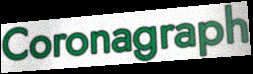
Coronagraph